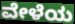
ವೇಳೆಯ